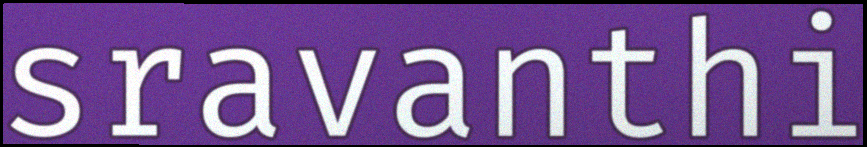
sravanthi